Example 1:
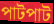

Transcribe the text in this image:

পাটপাট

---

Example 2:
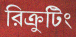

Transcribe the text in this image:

রিক্রুটিং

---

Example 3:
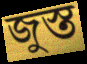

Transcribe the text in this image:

জুস্ত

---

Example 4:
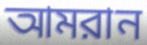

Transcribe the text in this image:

আমরান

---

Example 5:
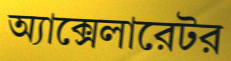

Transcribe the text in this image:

অ্যাক্সেলারেটর